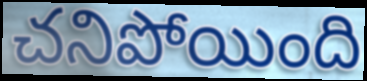
చనిపోయింది